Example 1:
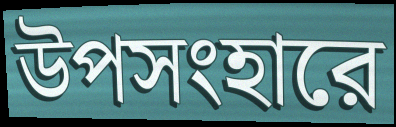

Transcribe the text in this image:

উপসংহারে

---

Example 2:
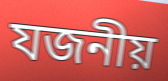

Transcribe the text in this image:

যজনীয়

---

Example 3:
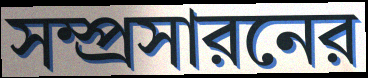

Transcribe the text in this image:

সম্প্রসারনের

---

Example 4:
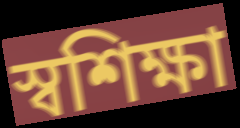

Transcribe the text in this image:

স্বশিক্ষা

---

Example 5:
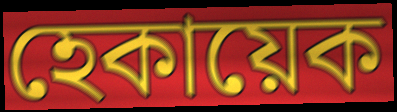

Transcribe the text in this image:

হেকায়েক